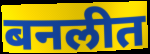
बनलीत